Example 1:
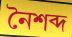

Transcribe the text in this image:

নৈশব্দ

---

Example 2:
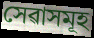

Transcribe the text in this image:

সেৱাসমূহ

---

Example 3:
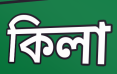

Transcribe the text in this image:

কিলা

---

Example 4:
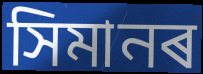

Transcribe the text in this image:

সিমানৰ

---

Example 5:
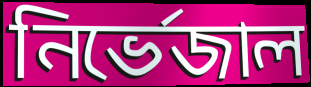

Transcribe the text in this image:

নিৰ্ভেজাল